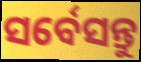
ସର୍ବେସନ୍ତୁ